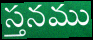
స్తనము